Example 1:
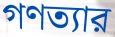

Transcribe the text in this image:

গণত্যার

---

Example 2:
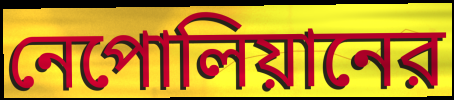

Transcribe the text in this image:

নেপোলিয়ানের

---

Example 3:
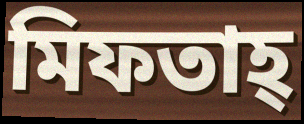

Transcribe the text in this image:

মিফতাহ্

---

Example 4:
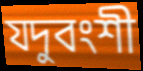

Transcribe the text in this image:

যদুবংশী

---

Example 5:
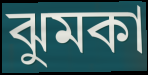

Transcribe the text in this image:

ঝুমকা